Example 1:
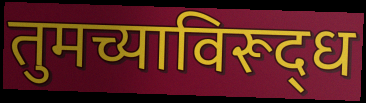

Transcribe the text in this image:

तुमच्याविरूद्ध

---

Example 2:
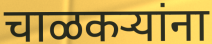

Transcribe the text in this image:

चाळकऱ्यांना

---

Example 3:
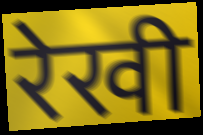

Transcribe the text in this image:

रेखी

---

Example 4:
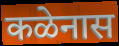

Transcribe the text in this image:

कळेनास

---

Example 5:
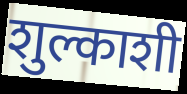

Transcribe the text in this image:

शुल्काशी